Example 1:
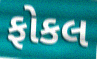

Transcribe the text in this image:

ફોકલ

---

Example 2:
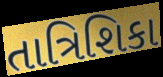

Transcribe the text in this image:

તાત્રિશિકા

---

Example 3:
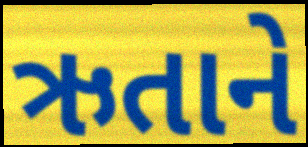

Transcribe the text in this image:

ઋતાને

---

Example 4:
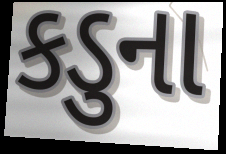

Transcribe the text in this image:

કડુના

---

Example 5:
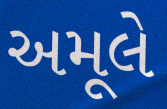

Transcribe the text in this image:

અમૂલે